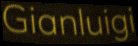
Gianluigi